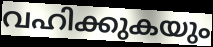
വഹിക്കുകയും